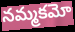
నమ్మకమో